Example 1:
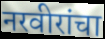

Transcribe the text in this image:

नरवीरांचा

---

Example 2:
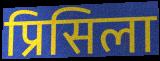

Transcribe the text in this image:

प्रिसिला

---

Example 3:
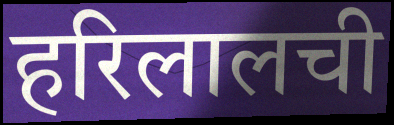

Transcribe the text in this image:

हरिलालची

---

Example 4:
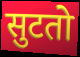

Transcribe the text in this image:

सुटतो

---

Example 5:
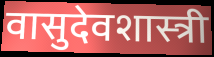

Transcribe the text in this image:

वासुदेवशास्त्री